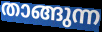
താങ്ങുന്ന